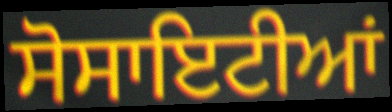
ਸੋਸਾਇਟੀਆਂ